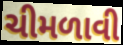
ચીમળાવી